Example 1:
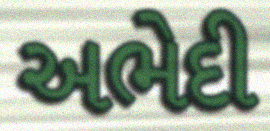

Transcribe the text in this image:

અભેદી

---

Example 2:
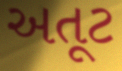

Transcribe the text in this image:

અતૂટ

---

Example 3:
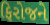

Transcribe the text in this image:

ફિરોજને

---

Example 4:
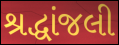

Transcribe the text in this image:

શ્રદ્ધાંજલી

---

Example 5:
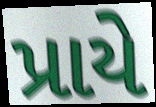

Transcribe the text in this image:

પ્રાયે